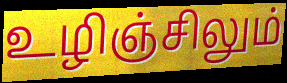
உழிஞ்சிலும்